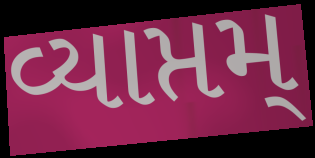
વ્યાપ્તમ્